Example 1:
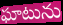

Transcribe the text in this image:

ఘాటును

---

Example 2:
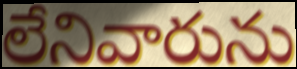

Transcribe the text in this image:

లేనివారును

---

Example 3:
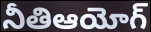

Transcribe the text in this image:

నీతిఆయోగ్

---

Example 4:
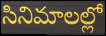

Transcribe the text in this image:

సినిమాలల్లో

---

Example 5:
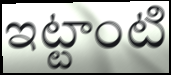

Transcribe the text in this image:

ఇట్టాంటి